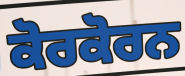
ਕੋਰਕੋਰਨ